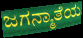
ಜಗನ್ಮಾತೆಯ